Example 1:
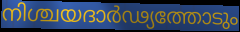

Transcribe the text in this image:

നിശ്ചയദാർഢ്യത്തോടും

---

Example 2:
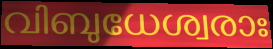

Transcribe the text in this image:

വിബുധേശ്വരാഃ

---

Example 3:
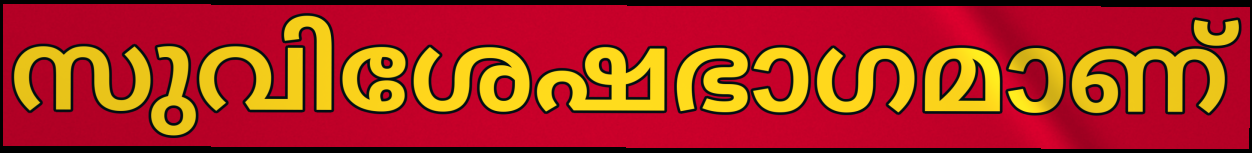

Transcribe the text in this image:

സുവിശേഷഭാഗമാണ്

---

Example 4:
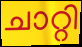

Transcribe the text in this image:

ചാറ്റി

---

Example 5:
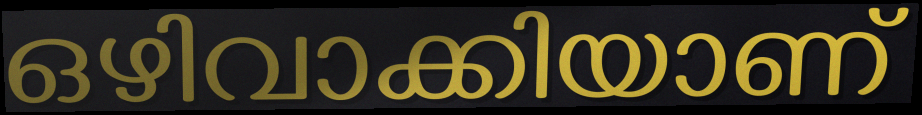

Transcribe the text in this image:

ഒഴിവാക്കിയാണ്